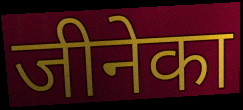
जीनेका